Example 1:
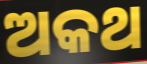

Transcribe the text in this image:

ଅକଥ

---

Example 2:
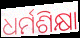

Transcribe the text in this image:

ଧର୍ମଶିକ୍ଷା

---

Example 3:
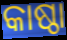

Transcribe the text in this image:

କାଷ୍ଠା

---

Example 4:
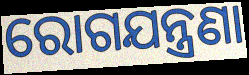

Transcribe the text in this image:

ରୋଗଯନ୍ତ୍ରଣା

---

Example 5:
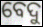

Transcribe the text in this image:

ବେଦୁ